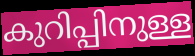
കുറിപ്പിനുള്ള